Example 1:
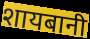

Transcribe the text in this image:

शायबानी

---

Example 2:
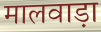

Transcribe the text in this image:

मालवाड़ा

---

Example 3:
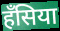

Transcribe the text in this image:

हँसिया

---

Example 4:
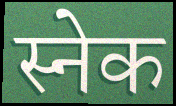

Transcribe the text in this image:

स्नेक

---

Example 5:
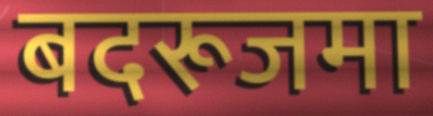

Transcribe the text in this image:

बदरूजमा